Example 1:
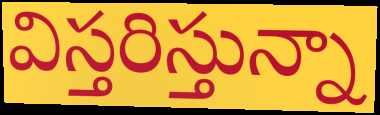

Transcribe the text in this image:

విస్తరిస్తున్నా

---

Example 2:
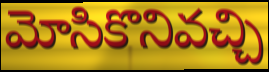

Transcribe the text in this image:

మోసికొనివచ్చి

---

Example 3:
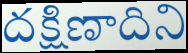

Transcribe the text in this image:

దక్షిణాదిని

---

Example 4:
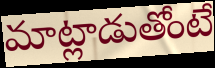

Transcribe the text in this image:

మాట్లాడుతోంటే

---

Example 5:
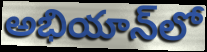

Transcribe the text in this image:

అభియాన్‌లో